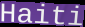
Haiti